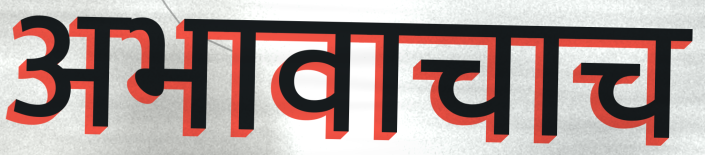
अभावाचाच